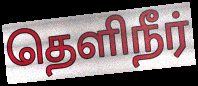
தெளிநீர்